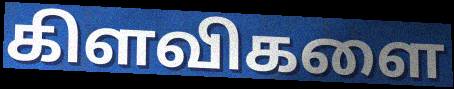
கிளவிகளை